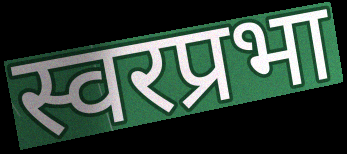
स्वरप्रभा